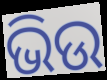
ଭିଉ